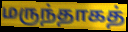
மருந்தாகத்